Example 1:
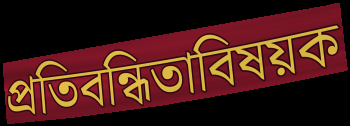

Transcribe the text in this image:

প্রতিবন্ধিতাবিষয়ক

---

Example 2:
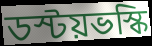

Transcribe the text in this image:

ডস্টয়ভস্কি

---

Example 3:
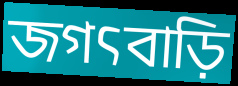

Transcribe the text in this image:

জগৎবাড়ি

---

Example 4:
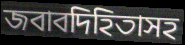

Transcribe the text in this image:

জবাবদিহিতাসহ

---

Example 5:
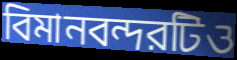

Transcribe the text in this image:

বিমানবন্দরটিও